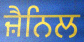
ਜ਼ੈਨਿਲ